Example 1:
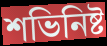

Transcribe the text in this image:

শভিনিষ্ট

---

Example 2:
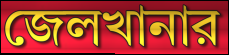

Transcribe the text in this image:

জেলখানার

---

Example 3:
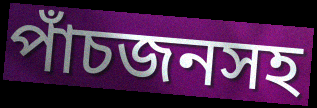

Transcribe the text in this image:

পাঁচজনসহ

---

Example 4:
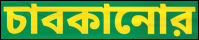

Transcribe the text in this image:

চাবকানোর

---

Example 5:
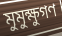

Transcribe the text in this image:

মুমুক্ষুগণ